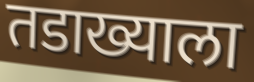
तडाख्याला